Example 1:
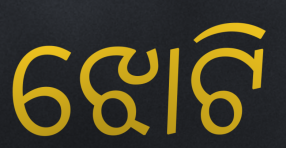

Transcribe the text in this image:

ଝୋଟି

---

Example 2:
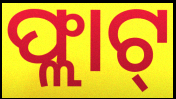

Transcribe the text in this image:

ଫ୍ଲାଟ୍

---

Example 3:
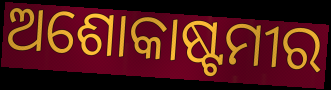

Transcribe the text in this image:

ଅଶୋକାଷ୍ଟମୀର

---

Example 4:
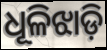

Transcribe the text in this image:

ଧୂଳିଝାଡ଼ି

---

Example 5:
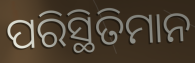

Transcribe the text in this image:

ପରିସ୍ଥିତିମାନ